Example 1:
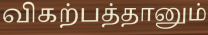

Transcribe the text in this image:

விகற்பத்தானும்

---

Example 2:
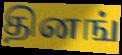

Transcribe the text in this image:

தினங்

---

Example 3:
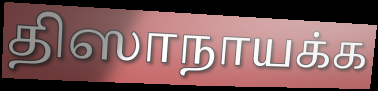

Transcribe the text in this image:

திஸாநாயக்க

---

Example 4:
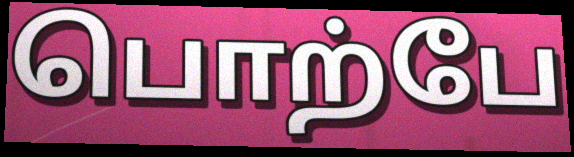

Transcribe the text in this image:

பொற்பே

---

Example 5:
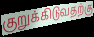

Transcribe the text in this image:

குறுக்கிடுவதற்கு